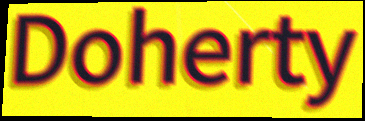
Doherty